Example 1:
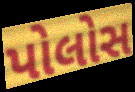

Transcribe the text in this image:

પોલોસ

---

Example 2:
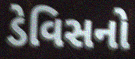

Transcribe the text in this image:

ડેવિસનો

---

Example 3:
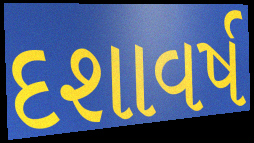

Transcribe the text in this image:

દશાવર્ષ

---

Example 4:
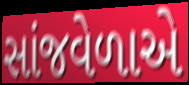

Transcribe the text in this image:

સાંજવેળાએ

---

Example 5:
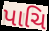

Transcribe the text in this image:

પાચિ